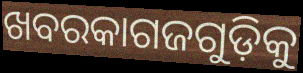
ଖବରକାଗଜଗୁଡ଼ିକୁ